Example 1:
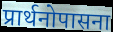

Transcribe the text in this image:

प्रार्थनोपासना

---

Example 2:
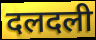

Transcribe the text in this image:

दलदली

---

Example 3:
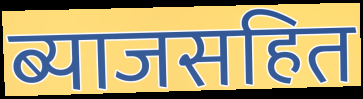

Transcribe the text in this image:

ब्याजसहित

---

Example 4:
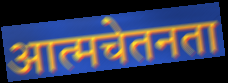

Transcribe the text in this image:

आत्मचेतनता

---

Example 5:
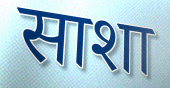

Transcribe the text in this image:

साशा